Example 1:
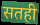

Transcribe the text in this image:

सतही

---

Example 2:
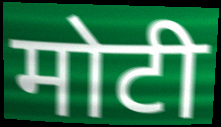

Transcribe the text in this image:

मोटी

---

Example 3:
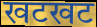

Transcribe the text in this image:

खटखट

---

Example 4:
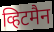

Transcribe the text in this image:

व्हिटमैन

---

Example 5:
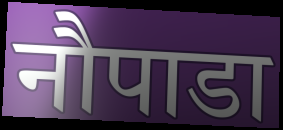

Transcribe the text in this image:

नौपाडा